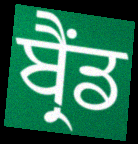
ਬ੍ਰੈਂਡ